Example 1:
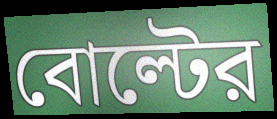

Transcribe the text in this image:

বোল্টের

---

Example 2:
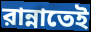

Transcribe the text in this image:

রান্নাতেই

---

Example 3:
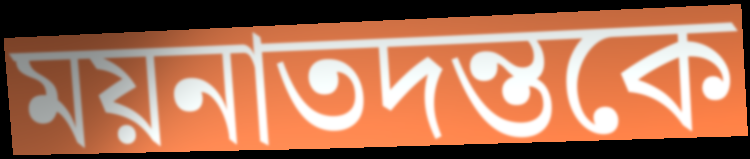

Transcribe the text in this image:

ময়নাতদন্তকে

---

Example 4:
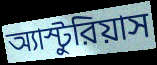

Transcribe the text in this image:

অ্যাস্টুরিয়াস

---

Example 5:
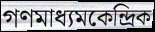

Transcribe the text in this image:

গণমাধ্যমকেন্দ্রিক